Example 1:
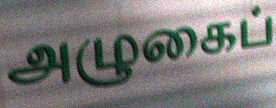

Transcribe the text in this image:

அழுகைப்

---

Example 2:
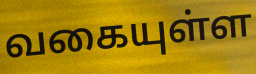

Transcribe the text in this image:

வகையுள்ள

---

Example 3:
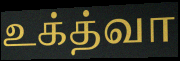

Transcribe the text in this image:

உக்த்வா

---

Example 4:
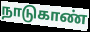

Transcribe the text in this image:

நாடுகாண்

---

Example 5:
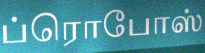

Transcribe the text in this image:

ப்ரொபோஸ்